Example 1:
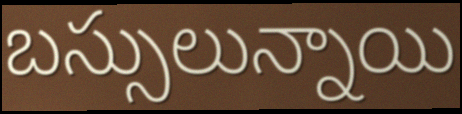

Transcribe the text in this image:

బస్సులున్నాయి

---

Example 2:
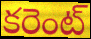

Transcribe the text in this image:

కరెంట్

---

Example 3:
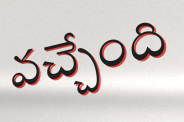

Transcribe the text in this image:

వచ్చేంది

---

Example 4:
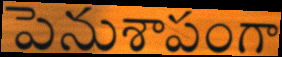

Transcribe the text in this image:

పెనుశాపంగా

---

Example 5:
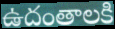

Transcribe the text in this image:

ఉదంతాలకి